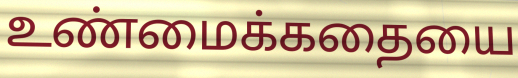
உண்மைக்கதையை